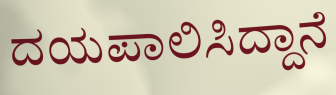
ದಯಪಾಲಿಸಿದ್ದಾನೆ